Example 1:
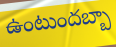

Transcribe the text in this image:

ఉంటుందబ్బా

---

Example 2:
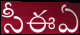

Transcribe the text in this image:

సీఈఏ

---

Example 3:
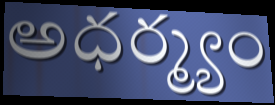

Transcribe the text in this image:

అధర్మ్యం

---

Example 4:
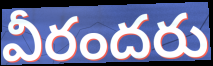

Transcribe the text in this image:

వీరందరు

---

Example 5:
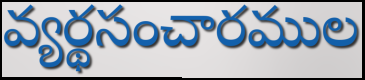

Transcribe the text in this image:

వ్యర్థసంచారముల